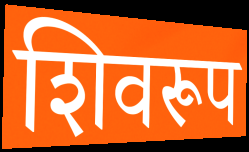
शिवरूप